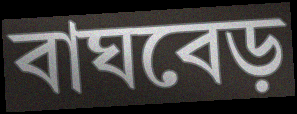
বাঘবেড়